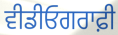
ਵੀਡੀਓਗਰਾਫ਼ੀ